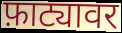
फ़ाट्यावर